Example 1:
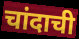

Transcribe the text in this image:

चांदाची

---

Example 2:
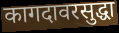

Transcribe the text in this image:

कागदावरसुद्धा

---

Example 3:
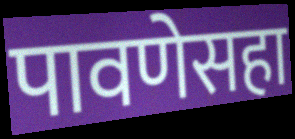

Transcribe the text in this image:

पावणेसहा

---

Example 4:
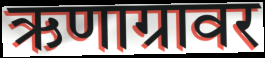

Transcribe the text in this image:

ऋणाग्रावर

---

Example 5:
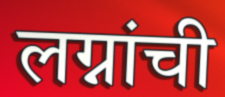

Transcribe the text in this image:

लग्नांची